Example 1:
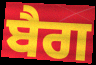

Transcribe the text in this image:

ਬੈਗ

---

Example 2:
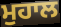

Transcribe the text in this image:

ਮੁਹਾਲ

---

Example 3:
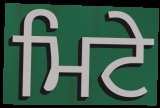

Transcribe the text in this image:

ਮਿਟੇ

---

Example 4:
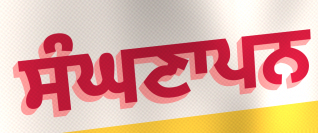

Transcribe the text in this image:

ਸੰਘਣਾਪਨ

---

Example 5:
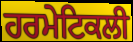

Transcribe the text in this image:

ਹਰਮੇਟਿਕਲੀ